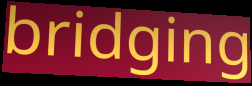
bridging